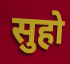
सुहो